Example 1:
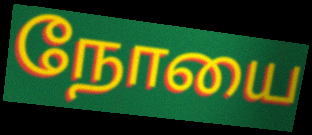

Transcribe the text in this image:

நோயை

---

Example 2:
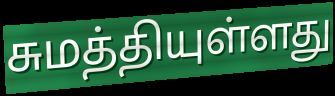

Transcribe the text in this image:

சுமத்தியுள்ளது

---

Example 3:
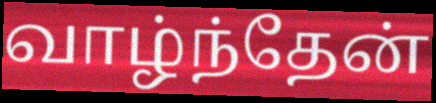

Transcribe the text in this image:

வாழ்ந்தேன்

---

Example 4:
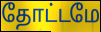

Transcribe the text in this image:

தோட்டமே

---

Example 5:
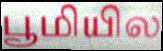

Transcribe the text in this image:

பூமியில